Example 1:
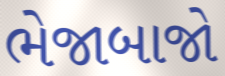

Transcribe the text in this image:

ભેજાબાજો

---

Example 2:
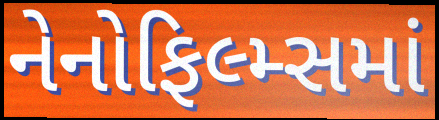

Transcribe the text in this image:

નેનોફિલ્મ્સમાં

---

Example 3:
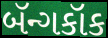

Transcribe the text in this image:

બૅન્ગકૉક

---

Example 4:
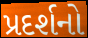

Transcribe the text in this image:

પ્રદર્શનો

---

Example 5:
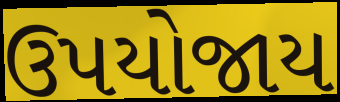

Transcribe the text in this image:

ઉપયોજાય